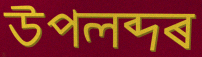
উপলব্দৰ